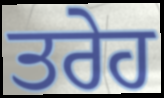
ਤਰੇਹ